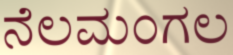
ನೆಲಮಂಗಲ